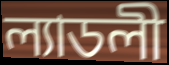
ল্যাডলী